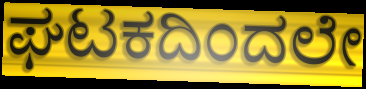
ಘಟಕದಿಂದಲೇ